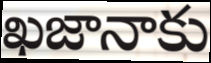
ఖజానాకు